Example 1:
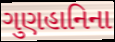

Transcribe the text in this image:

ગુણહાનિના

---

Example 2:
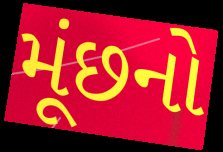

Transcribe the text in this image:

મૂંછનો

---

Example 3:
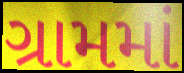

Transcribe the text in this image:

ગ્રામમાં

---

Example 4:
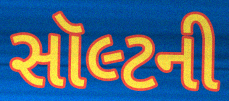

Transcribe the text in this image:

સૉલ્ટની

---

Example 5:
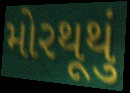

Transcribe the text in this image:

મોરથૂથું